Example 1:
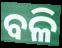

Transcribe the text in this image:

ବଳି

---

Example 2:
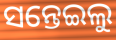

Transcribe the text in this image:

ସନ୍ତେଇଲୁ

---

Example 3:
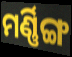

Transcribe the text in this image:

ମର୍ଣ୍ଣିଙ୍ଗ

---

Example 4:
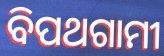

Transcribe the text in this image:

ବିପଥଗାମୀ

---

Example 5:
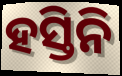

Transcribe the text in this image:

ହସ୍ତିନି